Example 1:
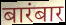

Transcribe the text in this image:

बारंबार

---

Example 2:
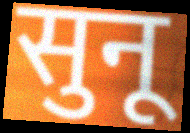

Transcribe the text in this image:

सुनू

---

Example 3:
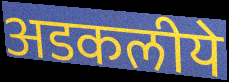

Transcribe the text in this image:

अडकलीये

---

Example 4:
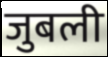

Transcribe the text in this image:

जुबली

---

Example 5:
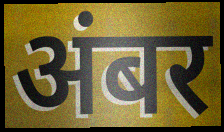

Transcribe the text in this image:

अंबर